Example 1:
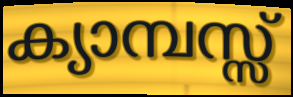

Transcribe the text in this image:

ക്യാമ്പസ്സ്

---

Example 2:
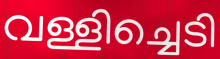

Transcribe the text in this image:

വള്ളിച്ചെടി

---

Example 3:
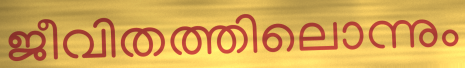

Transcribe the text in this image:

ജീവിതത്തിലൊന്നും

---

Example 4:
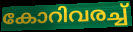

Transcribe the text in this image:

കോറിവരച്ച്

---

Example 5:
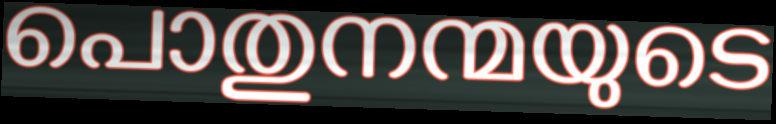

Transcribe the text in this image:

പൊതുനന്മയുടെ